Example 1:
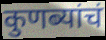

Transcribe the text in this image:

कुणब्यांचं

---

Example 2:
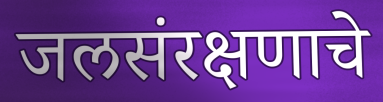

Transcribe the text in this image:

जलसंरक्षणाचे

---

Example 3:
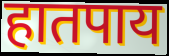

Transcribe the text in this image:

हातपाय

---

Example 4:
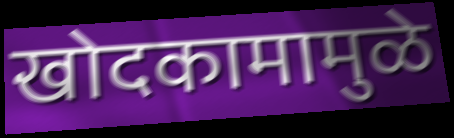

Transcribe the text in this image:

खोदकामामुळे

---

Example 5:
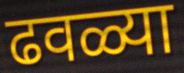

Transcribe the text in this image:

ढवळ्या